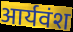
आर्यवंश